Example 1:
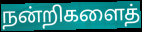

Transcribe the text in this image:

நன்றிகளைத்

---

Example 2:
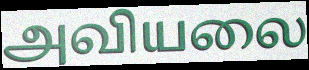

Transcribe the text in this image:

அவியலை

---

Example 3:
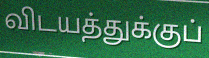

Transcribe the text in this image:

விடயத்துக்குப்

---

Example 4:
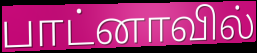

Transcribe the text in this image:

பாட்னாவில்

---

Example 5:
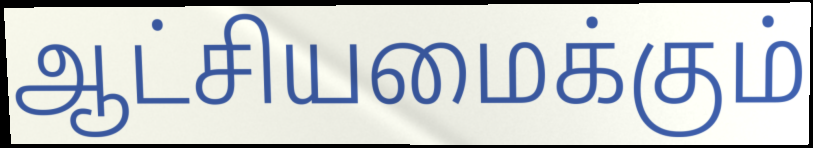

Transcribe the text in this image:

ஆட்சியமைக்கும்